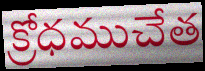
క్రోధముచేత